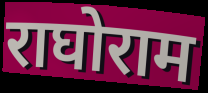
राघोराम